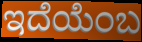
ಇದೆಯೆಂಬ